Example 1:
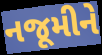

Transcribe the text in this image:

નજૂમીને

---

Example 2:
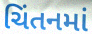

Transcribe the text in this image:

ચિંતનમાં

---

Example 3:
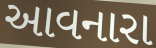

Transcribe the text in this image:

આવનારા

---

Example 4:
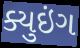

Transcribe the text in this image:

ક્યુઇંગ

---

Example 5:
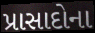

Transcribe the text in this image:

પ્રાસાદોના